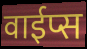
वाईप्स